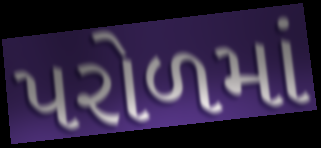
પરોળમાં